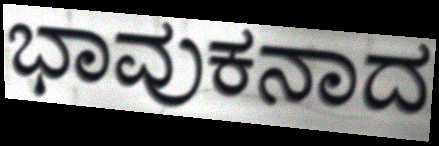
ಭಾವುಕನಾದ